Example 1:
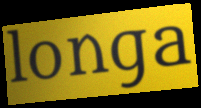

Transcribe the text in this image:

longa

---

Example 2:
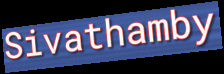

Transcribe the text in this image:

Sivathamby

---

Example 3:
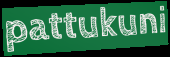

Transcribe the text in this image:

pattukuni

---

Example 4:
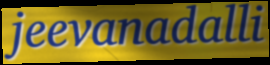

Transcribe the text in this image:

jeevanadalli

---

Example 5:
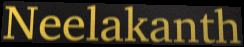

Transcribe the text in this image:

Neelakanth